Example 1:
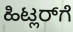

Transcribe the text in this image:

ಹಿಟ್ಲರ್‌ಗೆ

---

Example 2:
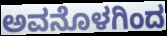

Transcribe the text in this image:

ಅವನೊಳಗಿಂದ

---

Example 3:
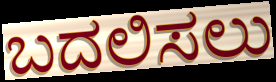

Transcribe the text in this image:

ಬದಲಿಸಲು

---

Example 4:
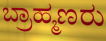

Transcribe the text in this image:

ಬ್ರಾಹ್ಮಣರು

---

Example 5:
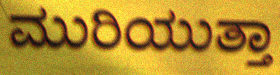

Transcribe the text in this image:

ಮುರಿಯುತ್ತಾ